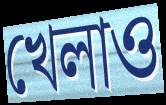
খেলাও